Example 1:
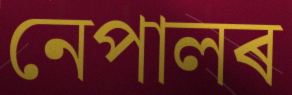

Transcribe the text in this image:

নেপালৰ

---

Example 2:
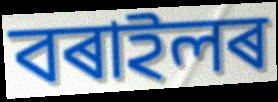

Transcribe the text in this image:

বৰাইলৰ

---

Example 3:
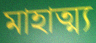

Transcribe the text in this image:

মাহাত্ম্য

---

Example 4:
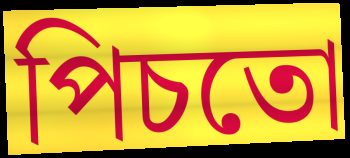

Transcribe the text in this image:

পিচতো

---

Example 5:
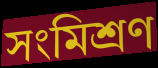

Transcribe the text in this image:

সংমিশ্ৰণ